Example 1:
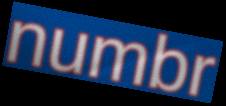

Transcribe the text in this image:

numbr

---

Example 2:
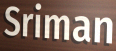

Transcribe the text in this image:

Sriman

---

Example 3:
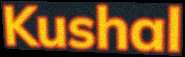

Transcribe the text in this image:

Kushal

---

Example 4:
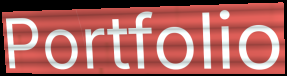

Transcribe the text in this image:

Portfolio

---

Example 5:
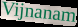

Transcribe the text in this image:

Vijnanam